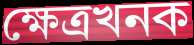
ক্ষেত্ৰখনক